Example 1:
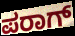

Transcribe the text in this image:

ಪರಾಗ್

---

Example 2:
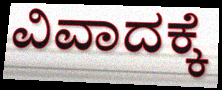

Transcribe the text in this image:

ವಿವಾದಕ್ಕೆ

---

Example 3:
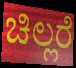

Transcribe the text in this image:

ಚಿಲ್ಲರೆ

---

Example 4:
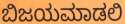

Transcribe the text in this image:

ಬಿಜಯಮಾಡಲಿ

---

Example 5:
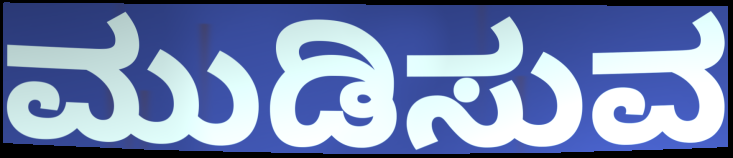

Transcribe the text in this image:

ಮುಡಿಸುವ